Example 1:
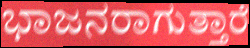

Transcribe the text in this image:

ಭಾಜನರಾಗುತ್ತಾರೆ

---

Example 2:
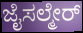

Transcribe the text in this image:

ಜೈಸಲ್ಮೇರ್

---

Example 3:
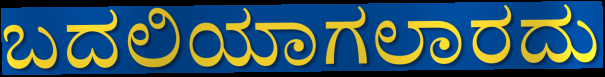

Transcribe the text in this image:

ಬದಲಿಯಾಗಲಾರದು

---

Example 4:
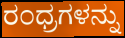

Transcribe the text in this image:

ರಂಧ್ರಗಳನ್ನು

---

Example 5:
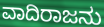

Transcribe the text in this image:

ವಾದಿರಾಜನು